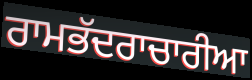
ਰਾਮਭੱਦਰਾਚਾਰੀਆ